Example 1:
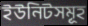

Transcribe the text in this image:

ইউনিটসমূহ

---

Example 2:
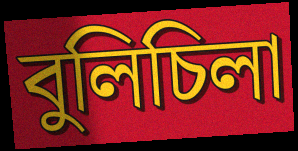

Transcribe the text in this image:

বুলিচিলা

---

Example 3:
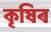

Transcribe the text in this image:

কৃষিৰ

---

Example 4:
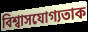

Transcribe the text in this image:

বিশ্বাসযোগ্যতাক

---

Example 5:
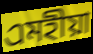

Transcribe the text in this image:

এমহীয়া